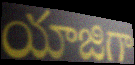
యాజిగా